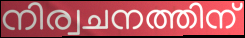
നിര്വചനത്തിന്